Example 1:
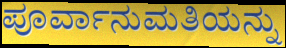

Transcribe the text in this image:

ಪೂರ್ವಾನುಮತಿಯನ್ನು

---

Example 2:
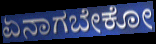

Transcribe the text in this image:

ಏನಾಗಬೇಕೋ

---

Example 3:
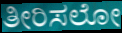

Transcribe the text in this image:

ತೀರಿಸಲೋ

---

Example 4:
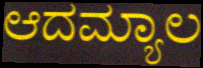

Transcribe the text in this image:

ಆದಮ್ಯಾಲ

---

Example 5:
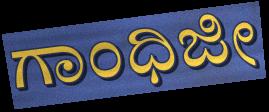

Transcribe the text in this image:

ಗಾಂಧಿಜೀ